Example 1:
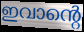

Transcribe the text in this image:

ഇവാന്റെ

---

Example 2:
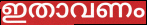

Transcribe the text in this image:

ഇതാവണം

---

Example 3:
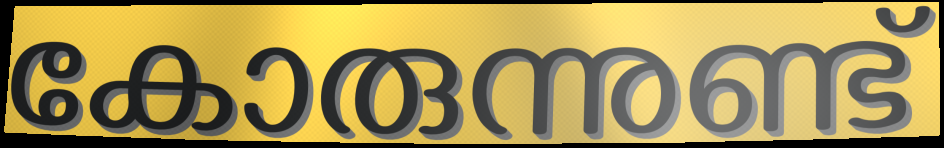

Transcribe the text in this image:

കോരുന്നുണ്ട്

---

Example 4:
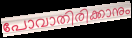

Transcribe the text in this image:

പോവാതിരിക്കാനും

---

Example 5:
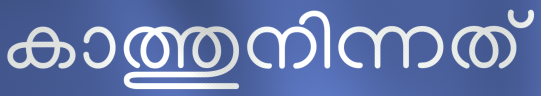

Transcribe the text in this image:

കാത്തുനിന്നത്